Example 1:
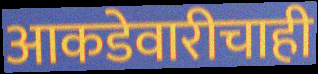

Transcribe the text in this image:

आकडेवारीचाही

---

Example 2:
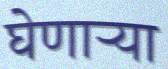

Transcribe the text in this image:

घेणार्‍या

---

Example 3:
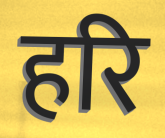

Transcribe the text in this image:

हरि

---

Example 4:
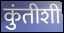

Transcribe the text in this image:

कुंतीशी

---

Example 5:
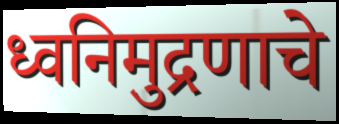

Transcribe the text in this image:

ध्वनिमुद्रणाचे